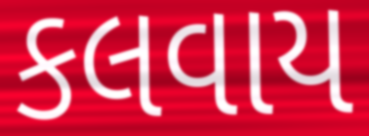
કલવાય